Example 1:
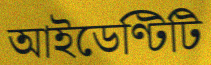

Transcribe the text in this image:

আইডেণ্টিটি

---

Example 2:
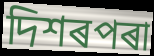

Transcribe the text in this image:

দিশৰপৰা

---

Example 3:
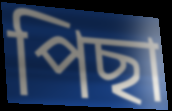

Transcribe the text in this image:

পিছা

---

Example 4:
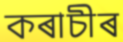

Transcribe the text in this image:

কৰাচীৰ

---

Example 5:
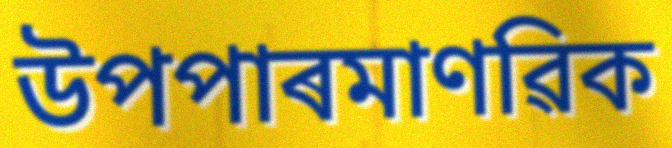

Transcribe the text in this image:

উপপাৰমাণৱিক